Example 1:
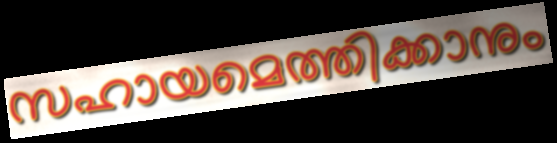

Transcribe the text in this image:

സഹായമെത്തിക്കാനും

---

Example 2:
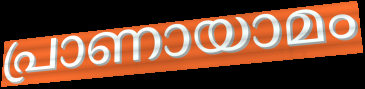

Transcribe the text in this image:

പ്രാണായാമം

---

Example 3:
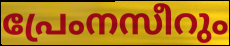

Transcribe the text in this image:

പ്രേംനസീറും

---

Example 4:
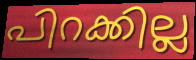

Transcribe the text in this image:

പിറക്കില്ല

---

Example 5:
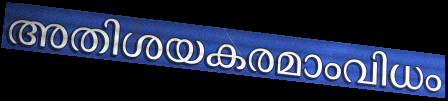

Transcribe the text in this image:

അതിശയകരമാംവിധം